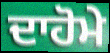
ਦਾਹੋਮੇ